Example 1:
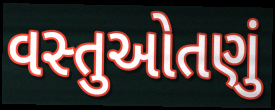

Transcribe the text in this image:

વસ્તુઓતણું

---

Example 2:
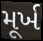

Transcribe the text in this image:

મૂર્ખ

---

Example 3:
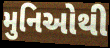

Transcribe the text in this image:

મુનિઓથી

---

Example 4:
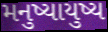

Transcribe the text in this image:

મનુષ્યાયુષ્ય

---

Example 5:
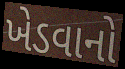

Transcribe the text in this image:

ખેડવાનો